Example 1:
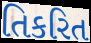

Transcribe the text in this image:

તિકરિત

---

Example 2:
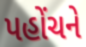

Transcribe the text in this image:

પહોંચને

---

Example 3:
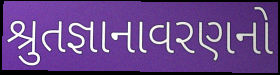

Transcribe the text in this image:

શ્રુતજ્ઞાનાવરણનો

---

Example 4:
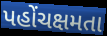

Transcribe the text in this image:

પહોંચક્ષમતા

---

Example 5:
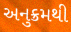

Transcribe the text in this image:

અનુક્રમથી